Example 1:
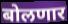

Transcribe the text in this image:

बोलणार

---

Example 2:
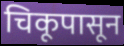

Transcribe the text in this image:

चिकूपासून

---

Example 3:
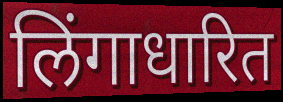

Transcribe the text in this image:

लिंगाधारित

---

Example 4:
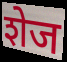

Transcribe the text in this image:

शेज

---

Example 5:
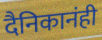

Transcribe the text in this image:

दैनिकानंही